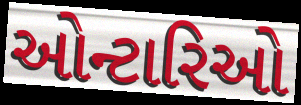
ઓન્ટારિઓ